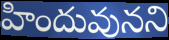
హిందువునని